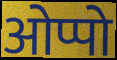
ओप्पो